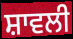
ਸ਼ਾਵਲੀ